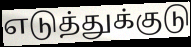
எடுத்துக்குடு